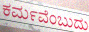
ಕರ್ಮವೆಂಬುದು